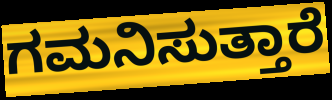
ಗಮನಿಸುತ್ತಾರೆ